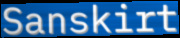
Sanskirt